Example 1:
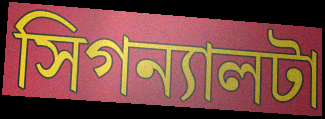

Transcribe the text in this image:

সিগন্যালটা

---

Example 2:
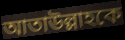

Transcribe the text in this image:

আতাউল্লাহকে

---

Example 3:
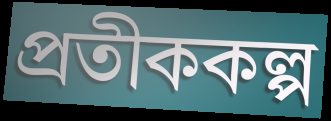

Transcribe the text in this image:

প্রতীককল্প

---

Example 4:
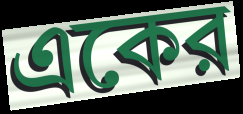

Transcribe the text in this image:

একের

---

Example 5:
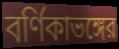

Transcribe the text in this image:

বর্ণিকাভঙ্গের